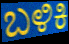
ಬಳಿಕಿ